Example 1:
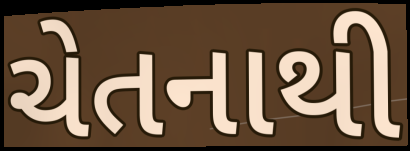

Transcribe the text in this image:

ચેતનાથી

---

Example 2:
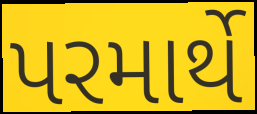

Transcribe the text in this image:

પરમાર્થે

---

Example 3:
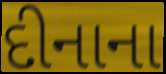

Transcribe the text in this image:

દીનાના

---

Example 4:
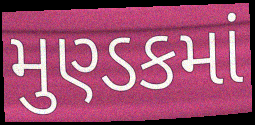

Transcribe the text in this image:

મુણ્ડકમાં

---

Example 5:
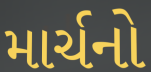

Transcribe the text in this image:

માર્ચનો